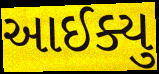
આઈક્યુ